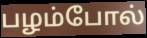
பழம்போல்